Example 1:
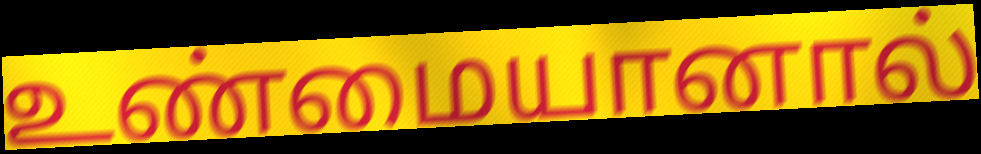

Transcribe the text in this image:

உண்மையானால்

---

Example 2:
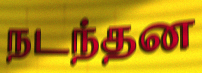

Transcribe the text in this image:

நடந்தன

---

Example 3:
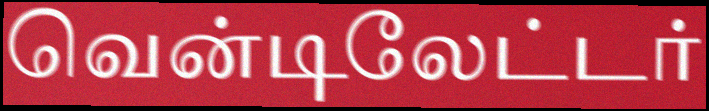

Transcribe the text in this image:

வென்டிலேட்டர்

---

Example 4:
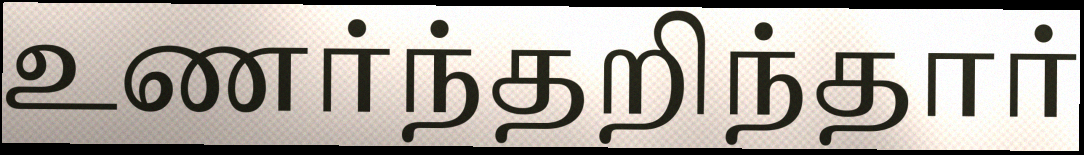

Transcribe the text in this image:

உணர்ந்தறிந்தார்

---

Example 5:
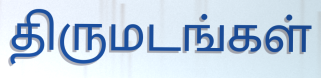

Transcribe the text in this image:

திருமடங்கள்